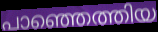
പാഞ്ഞെത്തിയ